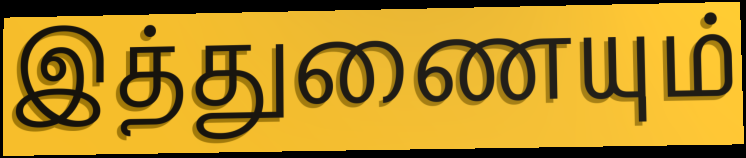
இத்துணையும்